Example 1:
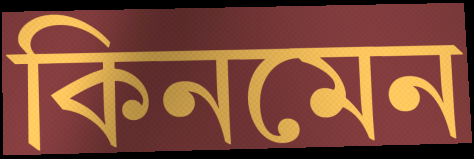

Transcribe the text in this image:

কিনমেন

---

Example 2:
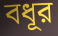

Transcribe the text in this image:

বধূর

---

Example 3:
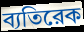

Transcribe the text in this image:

ব্যতিরেক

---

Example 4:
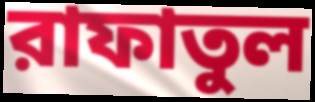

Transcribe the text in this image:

রাফাতুল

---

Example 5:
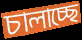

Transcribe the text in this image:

চালাচ্ছে